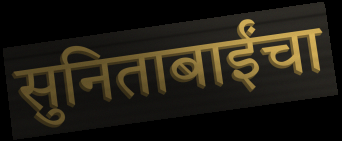
सुनिताबाईंचा